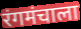
रंगमंचाला